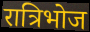
रात्रिभोज